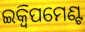
ଇକ୍ୱିପମେଣ୍ଟ